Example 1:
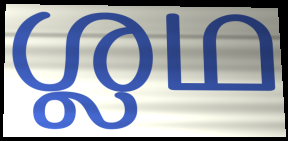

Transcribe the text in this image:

ശ്ലഥ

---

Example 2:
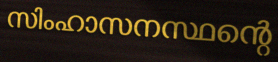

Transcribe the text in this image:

സിംഹാസനസ്ഥന്റെ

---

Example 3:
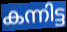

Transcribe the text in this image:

കന്നിട്ട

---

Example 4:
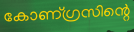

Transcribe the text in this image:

കോണ്ഗ്രസിന്റെ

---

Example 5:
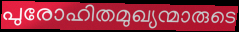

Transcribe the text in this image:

പുരോഹിതമുഖ്യന്മാരുടെ